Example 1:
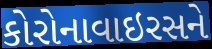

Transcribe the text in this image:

કોરોનાવાઇરસને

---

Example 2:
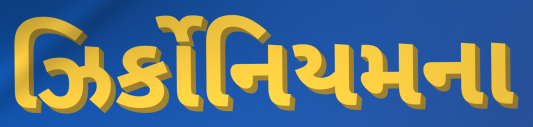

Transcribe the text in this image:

ઝિર્કોનિયમના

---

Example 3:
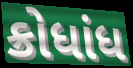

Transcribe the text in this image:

ક્રોધાંધ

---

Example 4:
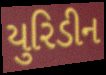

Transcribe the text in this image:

યુરિડીન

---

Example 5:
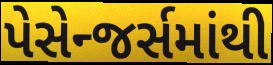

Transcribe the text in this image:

પેસેન્જર્સમાંથી